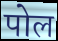
पोल